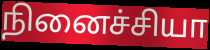
நினைச்சியா